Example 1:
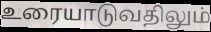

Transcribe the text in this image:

உரையாடுவதிலும்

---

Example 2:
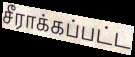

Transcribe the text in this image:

சீராக்கப்பட்ட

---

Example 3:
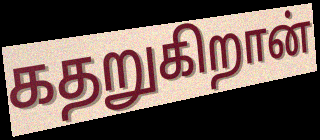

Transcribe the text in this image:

கதறுகிறான்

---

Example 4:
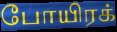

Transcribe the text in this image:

போயிரக்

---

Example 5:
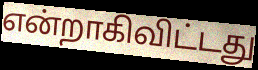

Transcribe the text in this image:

என்றாகிவிட்டது